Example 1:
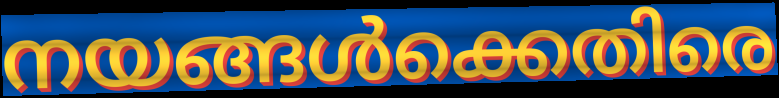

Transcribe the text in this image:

നയങ്ങൾക്കെതിരെ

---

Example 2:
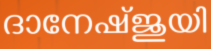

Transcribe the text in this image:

ദാനേഷ്ജുയി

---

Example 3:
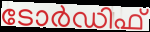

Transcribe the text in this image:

ടോർഡിഫ്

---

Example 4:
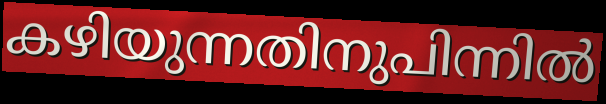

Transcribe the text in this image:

കഴിയുന്നതിനുപിന്നിൽ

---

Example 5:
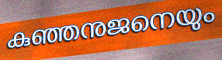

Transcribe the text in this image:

കുഞ്ഞനുജനെയും